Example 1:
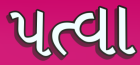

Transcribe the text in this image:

પત્વા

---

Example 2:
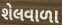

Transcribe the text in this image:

શેલવાળા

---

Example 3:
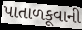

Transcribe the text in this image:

પાતાળકૂવાની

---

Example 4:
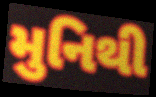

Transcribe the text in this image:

મુનિથી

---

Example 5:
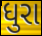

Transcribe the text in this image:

ધુરા